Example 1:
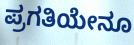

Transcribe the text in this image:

ಪ್ರಗತಿಯೇನೂ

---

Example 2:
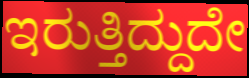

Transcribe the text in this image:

ಇರುತ್ತಿದ್ದುದೇ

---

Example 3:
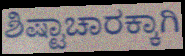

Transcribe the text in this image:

ಶಿಷ್ಟಾಚಾರಕ್ಕಾಗಿ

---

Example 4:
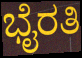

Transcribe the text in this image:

ಭೈರತಿ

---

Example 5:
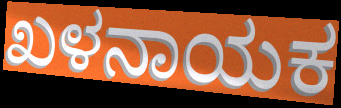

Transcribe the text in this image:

ಖಳನಾಯಕ